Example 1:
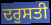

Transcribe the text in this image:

ਦਰੁਸਤੀ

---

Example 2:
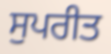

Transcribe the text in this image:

ਸੁਪਰੀਤ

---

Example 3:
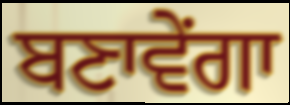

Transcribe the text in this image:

ਬਣਾਵੇਂਗਾ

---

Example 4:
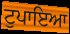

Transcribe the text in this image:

ਟੁਪਾਇਆ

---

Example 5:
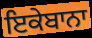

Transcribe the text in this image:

ਇਕੇਬਾਨਾ